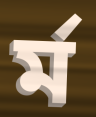
র্ম